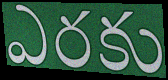
ఎరకు